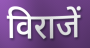
विराजें